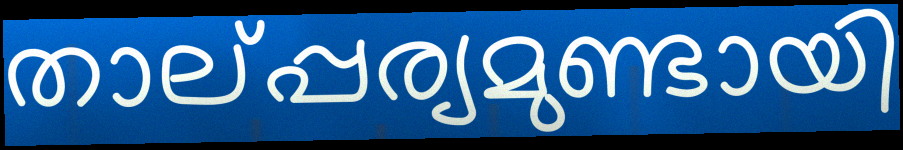
താല്പ്പര്യമുണ്ടായി